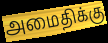
அமைதிக்கு